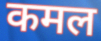
कमल